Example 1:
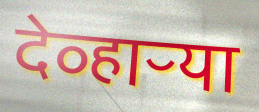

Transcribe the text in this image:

देव्हाऱ्या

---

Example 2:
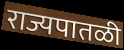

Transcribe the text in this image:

राज्यपातळी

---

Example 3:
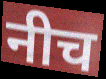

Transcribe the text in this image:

नीच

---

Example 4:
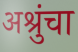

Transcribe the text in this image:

अश्रुंचा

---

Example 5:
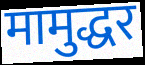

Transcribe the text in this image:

मामुद्धर